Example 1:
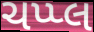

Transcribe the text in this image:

ચપ્પ્લ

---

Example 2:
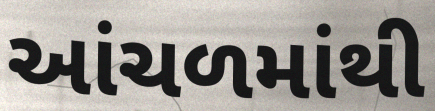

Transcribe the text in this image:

આંચળમાંથી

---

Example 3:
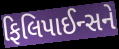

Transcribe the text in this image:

ફિલિપાઈન્સને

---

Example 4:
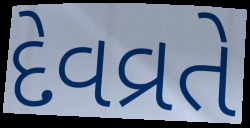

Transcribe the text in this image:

દેવવ્રતે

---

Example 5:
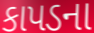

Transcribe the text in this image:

કાપડના